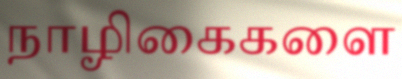
நாழிகைகளை